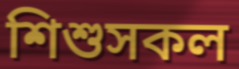
শিশুসকল